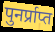
पुनर्प्राप्त